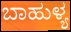
ಬಾಹುಳ್ಯ